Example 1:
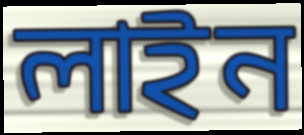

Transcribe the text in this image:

লাইন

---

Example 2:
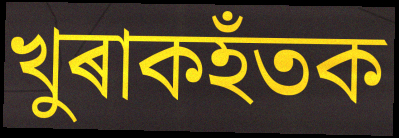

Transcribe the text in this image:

খুৰাকহঁতক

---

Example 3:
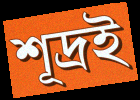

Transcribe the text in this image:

শূদ্ৰই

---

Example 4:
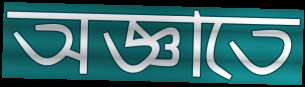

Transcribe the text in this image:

অজ্ঞাতে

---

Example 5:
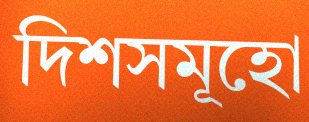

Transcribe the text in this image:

দিশসমূহো